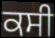
ਕਸੀ